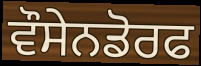
ਵੌਸੇਨਡੋਰਫ